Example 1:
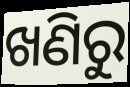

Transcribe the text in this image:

ଖଣିରୁ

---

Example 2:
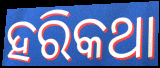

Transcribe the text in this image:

ହରିକଥା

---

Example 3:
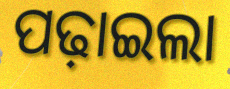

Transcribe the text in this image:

ପଢ଼ାଇଲା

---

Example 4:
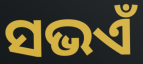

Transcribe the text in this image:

ସଭଏଁ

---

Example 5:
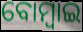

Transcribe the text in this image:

ବୋମ୍ୱାଇ